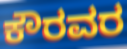
ಕೌರವರ